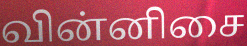
வின்னிசை